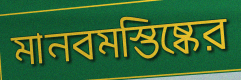
মানবমস্তিষ্কের